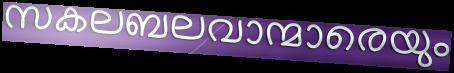
സകലബലവാന്മാരെയും